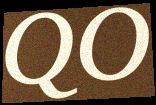
QO